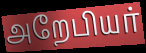
அறேபியர்